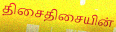
திசைதிசையின்